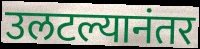
उलटल्यानंतर